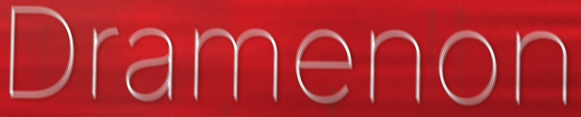
Dramenon